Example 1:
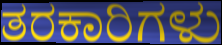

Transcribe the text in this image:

ತರಕಾರಿಗಳು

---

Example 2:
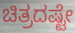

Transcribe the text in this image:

ಚಿತ್ರದಷ್ಟೇ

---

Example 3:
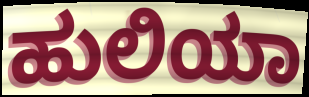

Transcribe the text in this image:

ಹುಲಿಯಾ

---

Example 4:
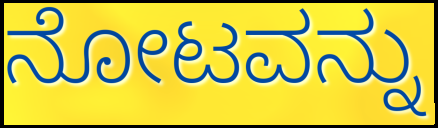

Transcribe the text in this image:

ನೋಟವನ್ನು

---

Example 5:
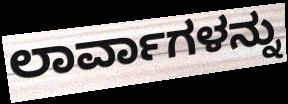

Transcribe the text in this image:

ಲಾರ್ವಾಗಳನ್ನು